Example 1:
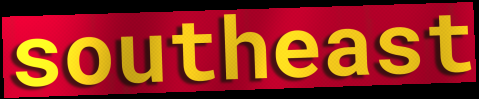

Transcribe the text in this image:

southeast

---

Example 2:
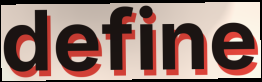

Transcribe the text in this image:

define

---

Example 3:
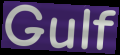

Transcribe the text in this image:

Gulf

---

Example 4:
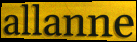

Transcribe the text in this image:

allanne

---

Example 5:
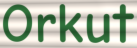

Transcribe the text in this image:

Orkut